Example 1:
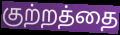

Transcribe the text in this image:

குற்றத்தை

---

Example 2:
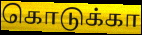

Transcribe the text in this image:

கொடுக்கா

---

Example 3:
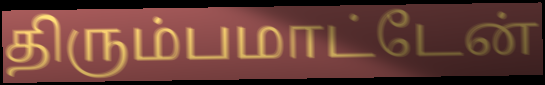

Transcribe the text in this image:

திரும்பமாட்டேன்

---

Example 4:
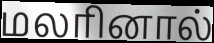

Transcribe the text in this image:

மலரினால்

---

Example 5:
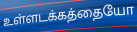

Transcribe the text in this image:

உள்ளடக்கத்தையோ